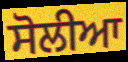
ਸੋਲੀਆ